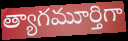
త్యాగమూర్తిగా